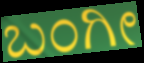
ಬಂಗೀ